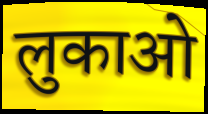
लुकाओ